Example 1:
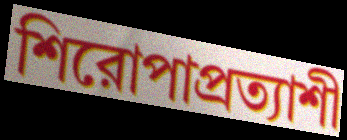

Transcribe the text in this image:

শিরোপাপ্রত্যাশী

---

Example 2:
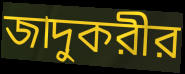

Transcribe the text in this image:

জাদুকরীর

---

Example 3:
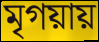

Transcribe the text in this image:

মৃগয়ায়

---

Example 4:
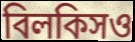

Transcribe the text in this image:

বিলকিসও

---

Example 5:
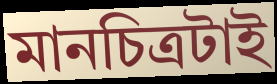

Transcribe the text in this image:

মানচিত্রটাই